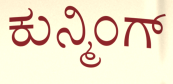
ಕುನ್ಮಿಂಗ್